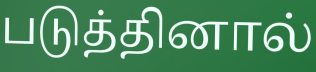
படுத்தினால்